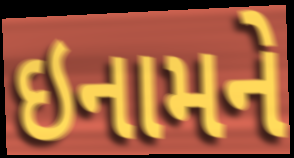
ઇનામને